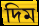
দিম